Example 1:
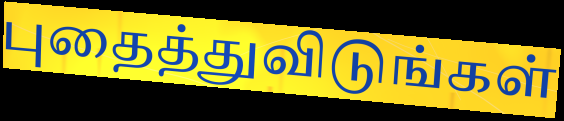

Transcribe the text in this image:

புதைத்துவிடுங்கள்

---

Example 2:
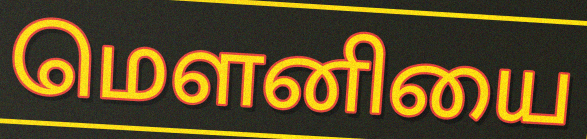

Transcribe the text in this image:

மௌனியை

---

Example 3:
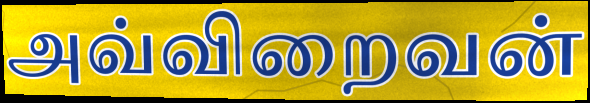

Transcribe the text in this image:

அவ்விறைவன்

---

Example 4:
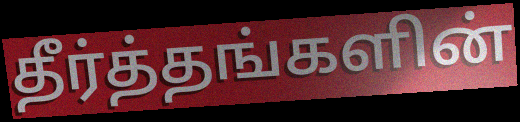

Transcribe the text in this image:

தீர்த்தங்களின்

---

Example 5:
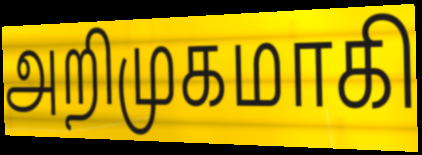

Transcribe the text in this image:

அறிமுகமாகி